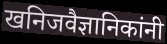
खनिजवैज्ञानिकांनी